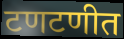
टणटणीत